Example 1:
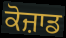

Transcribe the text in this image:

ਕੋਜ਼ਾਡ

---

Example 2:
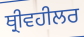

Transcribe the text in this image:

ਥ੍ਰੀਵਹੀਲਰ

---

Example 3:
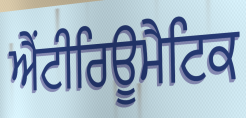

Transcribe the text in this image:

ਐਂਟੀਰਿਊਮੈਟਿਕ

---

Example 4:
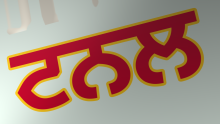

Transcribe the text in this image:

ਟਨਲ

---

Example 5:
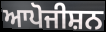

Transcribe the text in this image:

ਆਪੋਜੀਸ਼ਨ